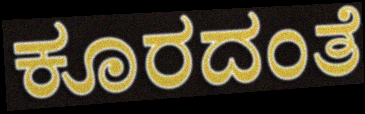
ಕೂರದಂತೆ